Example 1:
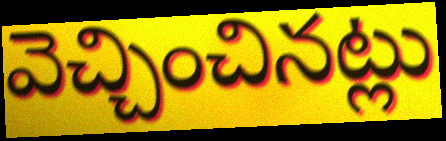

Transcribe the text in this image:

వెచ్చించినట్లు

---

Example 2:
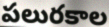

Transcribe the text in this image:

పలురకాల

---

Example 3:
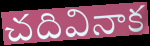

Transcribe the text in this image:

చదివినాక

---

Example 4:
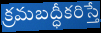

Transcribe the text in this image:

క్రమబద్ధీకరిస్తే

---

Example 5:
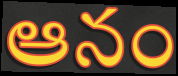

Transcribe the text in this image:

ఆనం